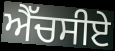
ਐੱਚਸੀਏ